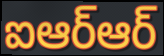
ఐఆర్ఆర్